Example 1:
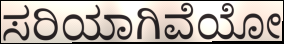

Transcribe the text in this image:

ಸರಿಯಾಗಿವೆಯೋ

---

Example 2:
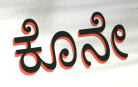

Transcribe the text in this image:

ಕೊನೇ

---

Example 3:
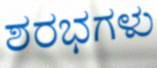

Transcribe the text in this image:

ಶರಭಗಳು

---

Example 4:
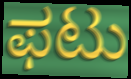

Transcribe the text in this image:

ಫಟು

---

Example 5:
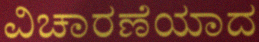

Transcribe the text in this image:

ವಿಚಾರಣೆಯಾದ